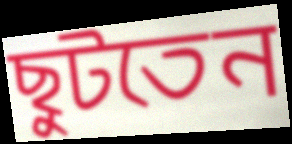
ছুটতেন